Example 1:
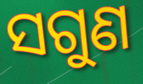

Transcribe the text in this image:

ସଗୁଣ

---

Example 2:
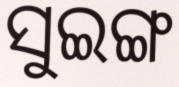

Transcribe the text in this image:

ସୁଇଙ୍ଗ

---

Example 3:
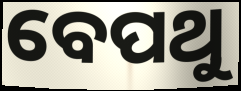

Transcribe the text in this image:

ବେପଥୁ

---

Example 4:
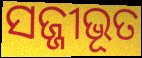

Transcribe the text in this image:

ସଜ୍ଜୀଭୂତ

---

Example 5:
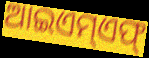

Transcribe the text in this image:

ଆଇଏମ୍ଏଫ୍